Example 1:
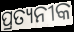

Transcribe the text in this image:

ପ୍ରତ୍ୟନୀକ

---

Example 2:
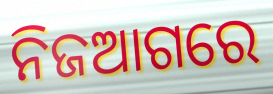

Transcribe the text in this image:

ନିଜଆଗରେ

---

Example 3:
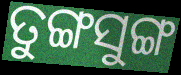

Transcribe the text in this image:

ତୁଙ୍ଗସୁଙ୍ଗ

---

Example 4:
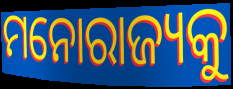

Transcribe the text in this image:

ମନୋରାଜ୍ୟକୁ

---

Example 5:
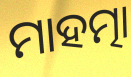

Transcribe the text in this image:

ମାହତ୍ମା